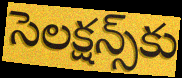
సెలక్షన్స్‌కు